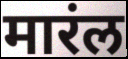
मारंल